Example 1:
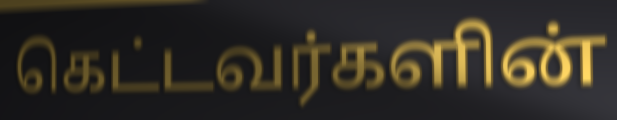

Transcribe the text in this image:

கெட்டவர்களின்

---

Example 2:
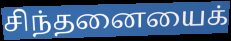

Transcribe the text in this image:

சிந்தனையைக்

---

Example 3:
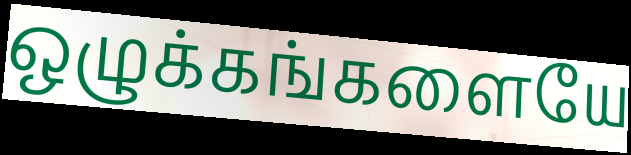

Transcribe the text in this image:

ஒழுக்கங்களையே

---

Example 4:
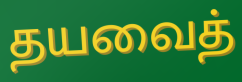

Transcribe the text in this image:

தயவைத்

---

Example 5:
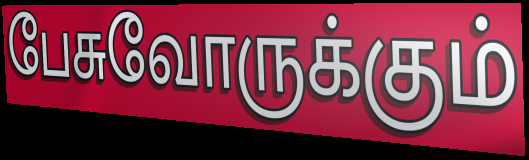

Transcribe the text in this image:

பேசுவோருக்கும்